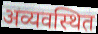
अव्यवस्थित